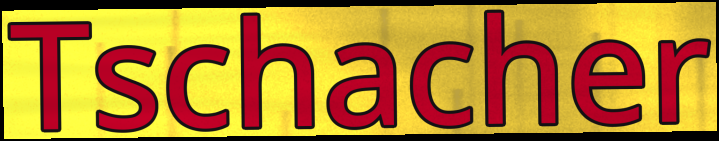
Tschacher